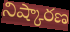
నిష్కారణ